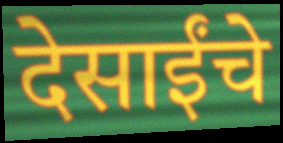
देसाईंचे